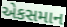
એકસમાન